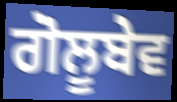
ਗੋਲੂਬੇਵ